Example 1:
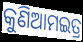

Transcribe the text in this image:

କୁଣିଆମଇତ୍ର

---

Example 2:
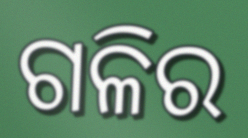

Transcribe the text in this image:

ଗଳିର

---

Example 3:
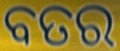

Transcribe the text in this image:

ବତର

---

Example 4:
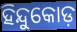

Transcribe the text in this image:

ହିନ୍ଦୁକୋଡ଼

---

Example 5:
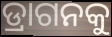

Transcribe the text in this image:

ଡ୍ରାଗନକୁ